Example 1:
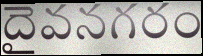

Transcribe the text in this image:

దైవనగరం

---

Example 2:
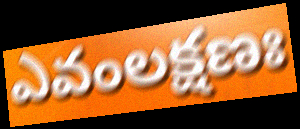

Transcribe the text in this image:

ఎవంలక్షణః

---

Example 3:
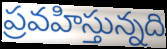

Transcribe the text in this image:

ప్రవహిస్తున్నది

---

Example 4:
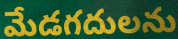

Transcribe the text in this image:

మేడగదులను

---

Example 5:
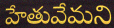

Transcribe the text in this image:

హేతువేమని